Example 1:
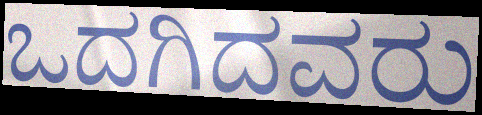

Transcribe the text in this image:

ಒದಗಿದವರು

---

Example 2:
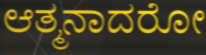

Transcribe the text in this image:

ಆತ್ಮನಾದರೋ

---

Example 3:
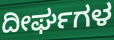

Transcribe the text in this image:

ದೀರ್ಘಗಳ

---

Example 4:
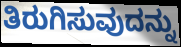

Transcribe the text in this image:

ತಿರುಗಿಸುವುದನ್ನು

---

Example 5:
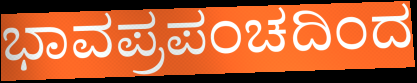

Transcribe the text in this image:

ಭಾವಪ್ರಪಂಚದಿಂದ